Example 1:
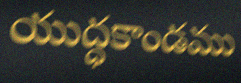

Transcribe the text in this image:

యుద్ధకాండము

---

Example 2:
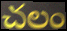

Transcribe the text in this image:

చలం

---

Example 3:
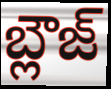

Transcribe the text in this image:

బ్లౌజ్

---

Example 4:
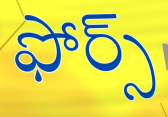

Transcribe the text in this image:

ఫోర్స్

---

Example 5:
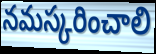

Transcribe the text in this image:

నమస్కరించాలి